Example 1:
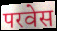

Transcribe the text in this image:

परवेस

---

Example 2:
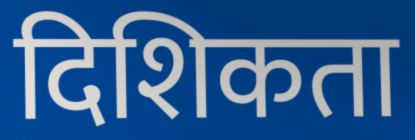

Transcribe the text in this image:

दिशिकता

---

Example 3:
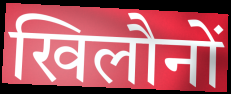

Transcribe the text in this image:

खिलौनों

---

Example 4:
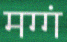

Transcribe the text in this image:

मग्गं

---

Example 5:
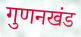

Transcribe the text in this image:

गुणनखंड